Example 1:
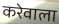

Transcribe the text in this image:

करेवाला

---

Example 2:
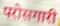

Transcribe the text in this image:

परोसगारी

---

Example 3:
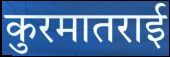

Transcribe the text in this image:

कुरमातराई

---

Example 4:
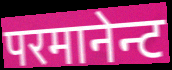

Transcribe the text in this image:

परमानेन्ट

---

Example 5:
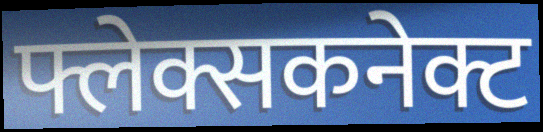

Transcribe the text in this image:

फ्लेक्सकनेक्ट